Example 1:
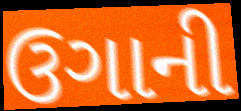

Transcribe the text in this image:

ઉગાની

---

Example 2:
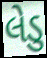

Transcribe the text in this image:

લેડુ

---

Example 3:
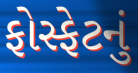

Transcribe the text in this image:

ફોસ્ફેટનું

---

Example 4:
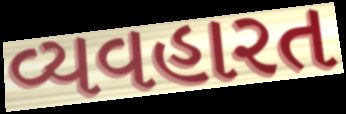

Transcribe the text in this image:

વ્યવહારત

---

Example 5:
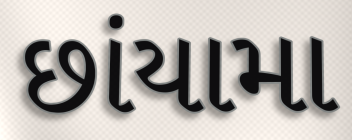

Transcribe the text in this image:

છાંયામા